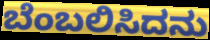
ಬೆಂಬಲಿಸಿದನು